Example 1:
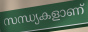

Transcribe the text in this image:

സന്ധ്യകളാണ്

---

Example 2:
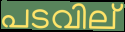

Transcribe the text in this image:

പടവില്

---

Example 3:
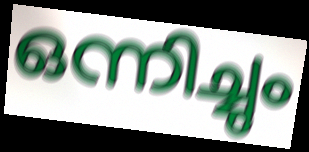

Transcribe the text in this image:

ഒന്നിച്ചും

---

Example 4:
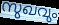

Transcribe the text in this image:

സുഖവും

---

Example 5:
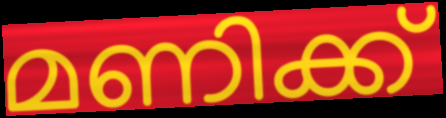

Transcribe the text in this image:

മണിക്ക്